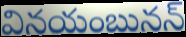
వినయంబునన్